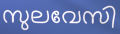
സുലവേസി